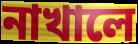
নাখালে